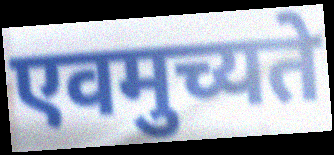
एवमुच्यते